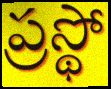
ప్రస్థో